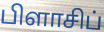
பிளாசிப்